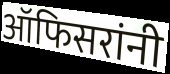
ऑफिसरांनी